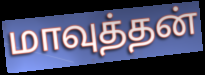
மாவுத்தன்